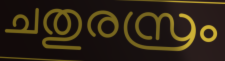
ചതുരസ്രം